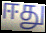
ஈது